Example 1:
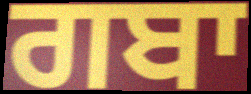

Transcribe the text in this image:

ਗਬਾ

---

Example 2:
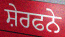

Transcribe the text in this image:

ਸ਼ੇਰਫਨੇ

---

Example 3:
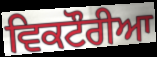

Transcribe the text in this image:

ਵਿਕਟੌਰੀਆ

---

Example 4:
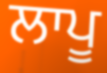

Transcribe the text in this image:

ਲਾਪੂ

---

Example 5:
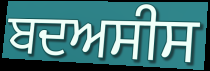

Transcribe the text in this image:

ਬਦਅਸੀਸ